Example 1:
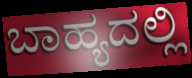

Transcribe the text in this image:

ಬಾಹ್ಯದಲ್ಲಿ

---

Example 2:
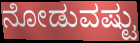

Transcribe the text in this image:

ನೋಡುವಷ್ಟು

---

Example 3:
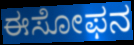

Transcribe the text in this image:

ಈಸೋಫನ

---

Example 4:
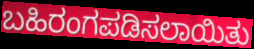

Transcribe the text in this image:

ಬಹಿರಂಗಪಡಿಸಲಾಯಿತು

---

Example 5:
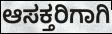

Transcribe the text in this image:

ಆಸಕ್ತರಿಗಾಗಿ